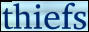
thiefs